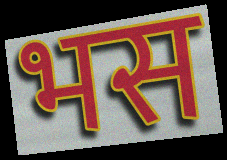
भस